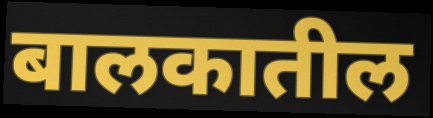
बालकातील